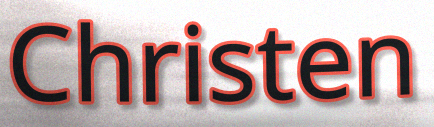
Christen